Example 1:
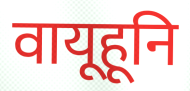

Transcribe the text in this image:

वायूहूनि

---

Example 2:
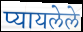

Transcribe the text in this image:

प्यायलेले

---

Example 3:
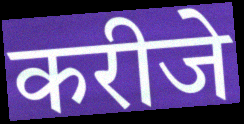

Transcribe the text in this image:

करीजे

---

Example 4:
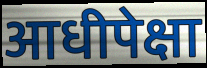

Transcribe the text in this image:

आधीपेक्षा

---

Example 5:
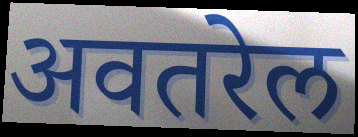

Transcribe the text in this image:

अवतरेल